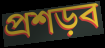
প্রশড়ব